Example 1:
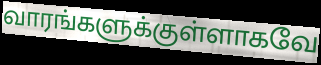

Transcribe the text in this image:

வாரங்களுக்குள்ளாகவே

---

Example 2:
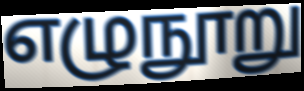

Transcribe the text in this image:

எழுநூறு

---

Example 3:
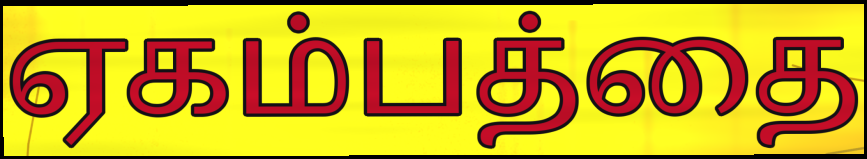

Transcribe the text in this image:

ஏகம்பத்தை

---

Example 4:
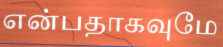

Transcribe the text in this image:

என்பதாகவுமே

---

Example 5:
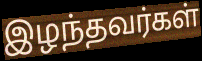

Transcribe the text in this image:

இழந்தவர்கள்